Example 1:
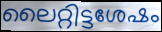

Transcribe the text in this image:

ലൈറ്റിട്ടശേഷം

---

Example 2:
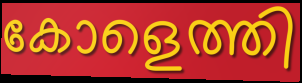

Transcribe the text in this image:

കോളെത്തി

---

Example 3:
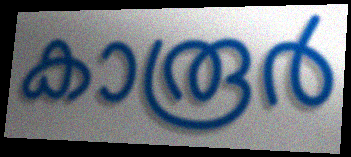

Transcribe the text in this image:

കാരൂർ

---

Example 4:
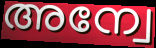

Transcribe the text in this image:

അന്വേ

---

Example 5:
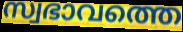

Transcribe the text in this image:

സ്വഭാവത്തെ